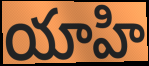
యాహి